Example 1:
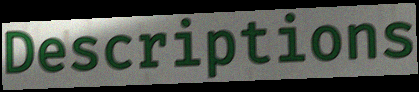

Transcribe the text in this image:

Descriptions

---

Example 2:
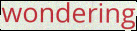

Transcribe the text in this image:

wondering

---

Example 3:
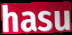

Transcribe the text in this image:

hasu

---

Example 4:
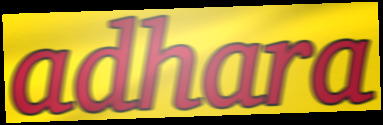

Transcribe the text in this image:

adhara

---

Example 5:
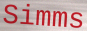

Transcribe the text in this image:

Simms